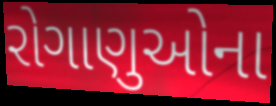
રોગાણુઓના